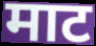
माट